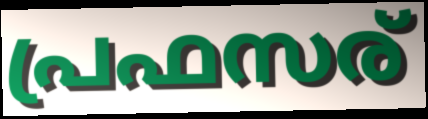
പ്രഫസര്